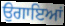
ਉਗਾਇਆਂ